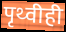
पृथ्वीही